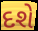
દશે